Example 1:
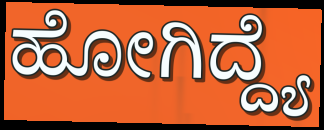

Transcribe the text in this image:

ಹೋಗಿದ್ದ್ಯೆ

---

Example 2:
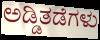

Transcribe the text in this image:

ಅಡ್ಡಿತಡೆಗಳು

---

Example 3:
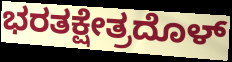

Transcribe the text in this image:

ಭರತಕ್ಷೇತ್ರದೊಳ್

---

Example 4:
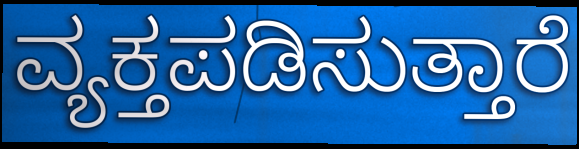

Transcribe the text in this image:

ವ್ಯಕ್ತಪಡಿಸುತ್ತಾರೆ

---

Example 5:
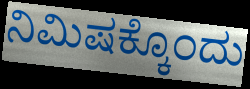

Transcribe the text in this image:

ನಿಮಿಷಕ್ಕೊಂದು